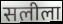
सलीला